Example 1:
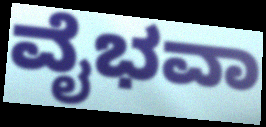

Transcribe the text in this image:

ವೈಭವಾ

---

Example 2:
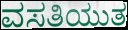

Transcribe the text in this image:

ವಸತಿಯುತ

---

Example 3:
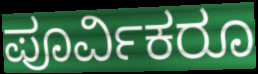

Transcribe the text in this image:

ಪೂರ್ವಿಕರೂ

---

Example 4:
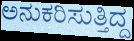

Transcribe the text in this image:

ಅನುಕರಿಸುತ್ತಿದ್ದ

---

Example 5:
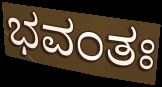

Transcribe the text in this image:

ಭವಂತಃ